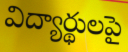
విద్యార్థులపై